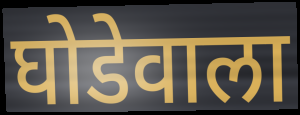
घोडेवाला